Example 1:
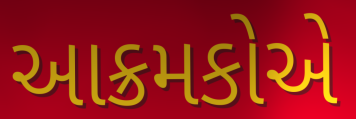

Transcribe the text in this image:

આક્રમકોએ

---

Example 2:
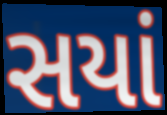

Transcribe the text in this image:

સયાં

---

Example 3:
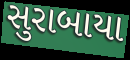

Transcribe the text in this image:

સુરાબાયા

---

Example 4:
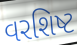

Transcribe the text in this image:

વરશિષ્ટ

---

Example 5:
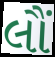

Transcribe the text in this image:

લૌં